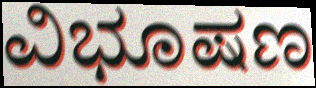
ವಿಭೂಷಣ